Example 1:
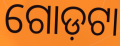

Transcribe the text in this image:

ଗୋଡ଼ଟା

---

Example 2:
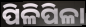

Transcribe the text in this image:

ପିଳିପିଳା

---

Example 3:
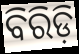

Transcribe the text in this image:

ବିରିଡ଼ି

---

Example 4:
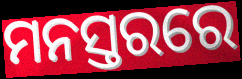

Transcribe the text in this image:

ମନସ୍ତରରେ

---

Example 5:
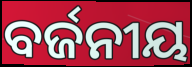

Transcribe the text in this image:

ବର୍ଜନୀୟ